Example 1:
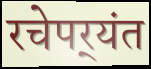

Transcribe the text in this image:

रचेपर्यंत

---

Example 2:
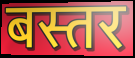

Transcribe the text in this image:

बस्तर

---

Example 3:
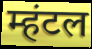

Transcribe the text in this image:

म्हंटल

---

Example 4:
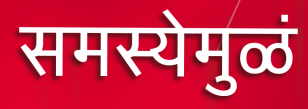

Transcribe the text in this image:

समस्येमुळं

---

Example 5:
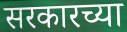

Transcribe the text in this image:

सरकारच्या